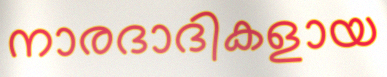
നാരദാദികളായ